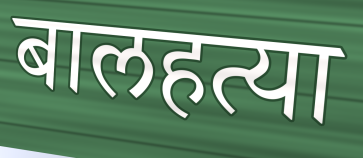
बालहत्या